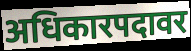
अधिकारपदावर